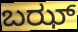
ಬಝ್